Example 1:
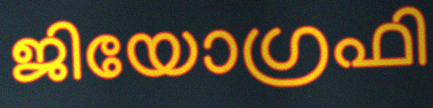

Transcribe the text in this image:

ജിയോഗ്രഫി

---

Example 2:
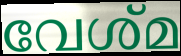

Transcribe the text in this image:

വേശ്മ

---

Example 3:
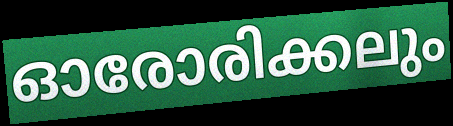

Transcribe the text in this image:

ഓരോരിക്കലും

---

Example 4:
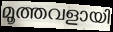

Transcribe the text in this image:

മൂത്തവളായി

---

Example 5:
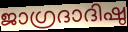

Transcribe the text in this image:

ജാഗ്രദാദിഷു